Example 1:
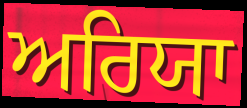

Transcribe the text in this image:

ਅਰਿਯਾ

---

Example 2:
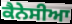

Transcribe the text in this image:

ਕੈਨੇਸੀਆ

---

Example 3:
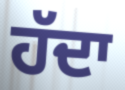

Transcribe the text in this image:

ਹੱਦਾ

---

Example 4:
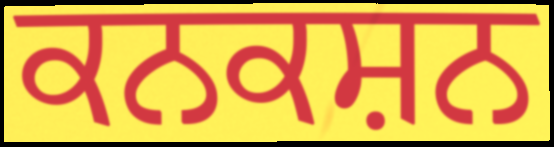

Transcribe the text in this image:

ਕਨਕਸ਼ਨ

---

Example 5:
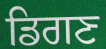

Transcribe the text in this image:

ਡਿਗਣ